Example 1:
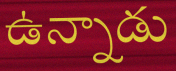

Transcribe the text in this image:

ఉన్నాడు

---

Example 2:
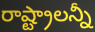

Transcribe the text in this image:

రాష్ట్రాలన్నీ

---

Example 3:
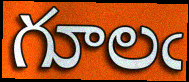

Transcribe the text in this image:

గూలఁ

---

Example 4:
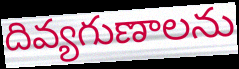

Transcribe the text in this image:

దివ్యగుణాలను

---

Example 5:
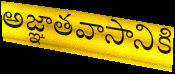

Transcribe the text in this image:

అజ్ఞాతవాసానికి